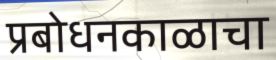
प्रबोधनकाळाचा